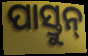
ପାସ୍ତୁନ୍